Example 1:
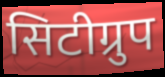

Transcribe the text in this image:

सिटीग्रुप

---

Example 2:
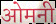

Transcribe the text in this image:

ओमनी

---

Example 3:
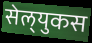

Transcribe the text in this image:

सेल्युकस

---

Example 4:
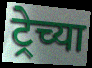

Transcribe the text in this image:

ट्रेच्या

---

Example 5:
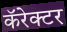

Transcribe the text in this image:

कॅरेक्टर